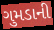
ગુમડાની